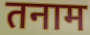
तनाम